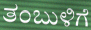
ತಂಬುಳಿಗೆ